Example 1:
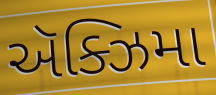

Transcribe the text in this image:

ઍક્ઝિમા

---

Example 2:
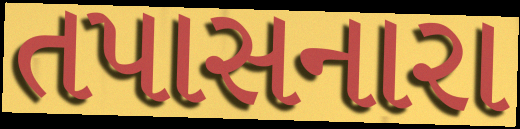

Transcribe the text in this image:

તપાસનારા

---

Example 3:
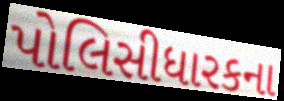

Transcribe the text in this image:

પોલિસીધારકના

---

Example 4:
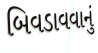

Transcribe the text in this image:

બિવડાવવાનું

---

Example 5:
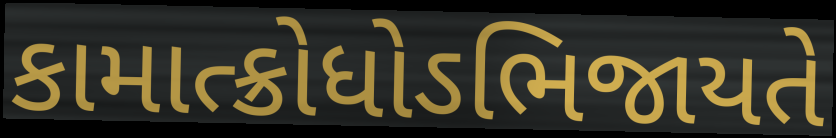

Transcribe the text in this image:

કામાત્ક્રોધોઽભિજાયતે